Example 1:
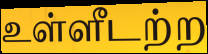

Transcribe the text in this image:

உள்ளீடற்ற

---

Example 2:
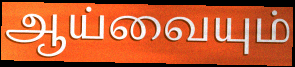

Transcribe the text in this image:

ஆய்வையும்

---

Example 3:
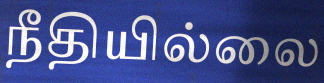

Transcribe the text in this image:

நீதியில்லை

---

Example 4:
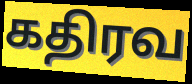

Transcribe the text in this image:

கதிரவ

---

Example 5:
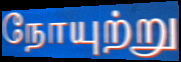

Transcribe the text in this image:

நோயுற்று